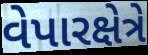
વેપારક્ષેત્રે